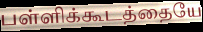
பள்ளிக்கூடத்தையே